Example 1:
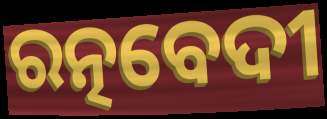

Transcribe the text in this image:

ରତ୍ନବେଦୀ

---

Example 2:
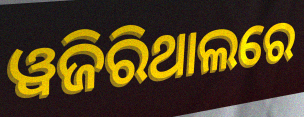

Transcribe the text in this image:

ୱଜିରିଥାଲରେ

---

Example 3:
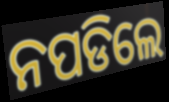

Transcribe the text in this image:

ନପଡିଲେ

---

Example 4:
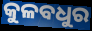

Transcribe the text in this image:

କୁଳବଧୁର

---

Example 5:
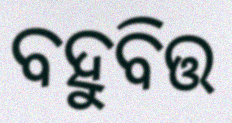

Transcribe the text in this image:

ବହୁବିତ୍ତ